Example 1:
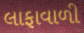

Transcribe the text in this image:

લાફાવાળી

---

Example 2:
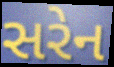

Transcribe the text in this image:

સરેન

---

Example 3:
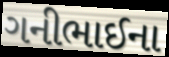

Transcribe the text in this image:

ગનીભાઈના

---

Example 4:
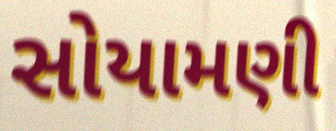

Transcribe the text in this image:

સોયામણી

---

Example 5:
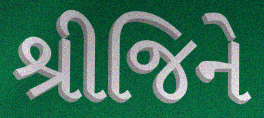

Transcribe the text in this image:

શ્રીજિને